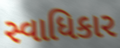
સ્વાધિકાર